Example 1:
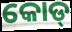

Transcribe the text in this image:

କୋଡ୍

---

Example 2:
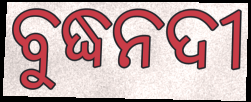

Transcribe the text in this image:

ବୁଦ୍ଧନଦୀ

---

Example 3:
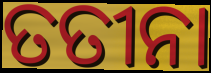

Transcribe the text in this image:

ତତୀନା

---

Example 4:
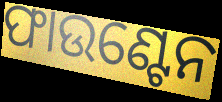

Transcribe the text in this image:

ଫାଉଣ୍ଟେନ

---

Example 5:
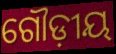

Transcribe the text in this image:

ଗୌଡ଼ୀୟ